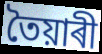
তৈয়াৰী